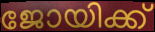
ജോയിക്ക്